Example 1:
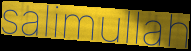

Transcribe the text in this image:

salimullah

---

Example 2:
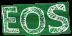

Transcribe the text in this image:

EOS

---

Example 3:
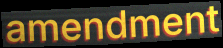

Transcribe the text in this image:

amendment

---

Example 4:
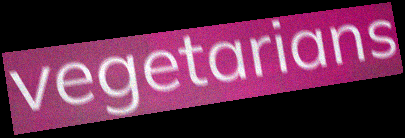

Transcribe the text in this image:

vegetarians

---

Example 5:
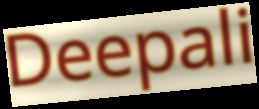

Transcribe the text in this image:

Deepali